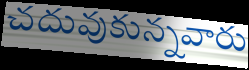
చదువుకున్నవారు